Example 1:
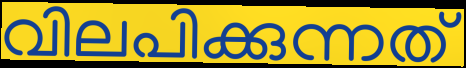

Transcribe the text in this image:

വിലപിക്കുന്നത്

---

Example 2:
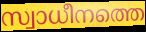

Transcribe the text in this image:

സ്വാധീനത്തെ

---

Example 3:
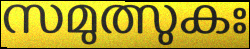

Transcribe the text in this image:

സമുത്സുകഃ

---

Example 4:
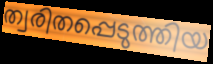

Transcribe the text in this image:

ത്വരിതപ്പെടുത്തിയ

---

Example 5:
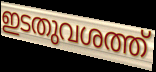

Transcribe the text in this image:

ഇടതുവശത്ത്